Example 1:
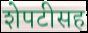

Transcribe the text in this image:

शेपटीसह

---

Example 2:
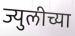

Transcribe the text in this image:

ज्युलीच्या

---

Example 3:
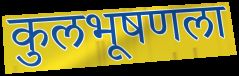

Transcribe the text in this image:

कुलभूषणला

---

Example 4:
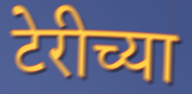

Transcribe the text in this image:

टेरीच्या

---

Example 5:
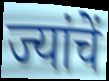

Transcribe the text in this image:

ज्यांचें